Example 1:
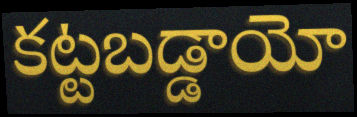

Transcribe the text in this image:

కట్టబడ్డాయో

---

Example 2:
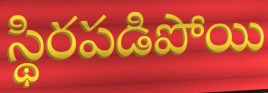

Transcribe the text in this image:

స్థిరపడిపోయి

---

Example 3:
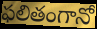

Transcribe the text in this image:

ఫలితంగానో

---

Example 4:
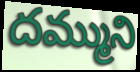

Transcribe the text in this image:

దమ్ముని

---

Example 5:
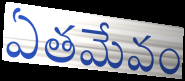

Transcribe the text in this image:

ఏతమేవం